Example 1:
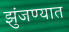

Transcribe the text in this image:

झुंजण्यात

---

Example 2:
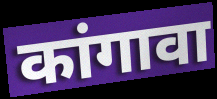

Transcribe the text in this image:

कांगावा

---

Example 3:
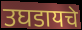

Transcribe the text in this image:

उघडायचे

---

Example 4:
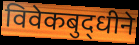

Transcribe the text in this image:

विवेकबुद्धीने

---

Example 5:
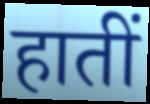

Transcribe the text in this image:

हातीं